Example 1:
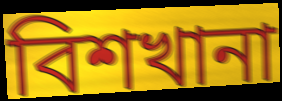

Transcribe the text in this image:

বিশখানা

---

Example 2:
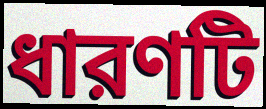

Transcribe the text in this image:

ধারণটি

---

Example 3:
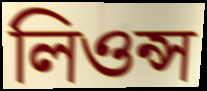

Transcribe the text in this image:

লিওন্স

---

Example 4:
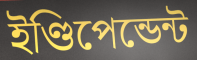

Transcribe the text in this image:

ইণ্ডিপেন্ডেন্ট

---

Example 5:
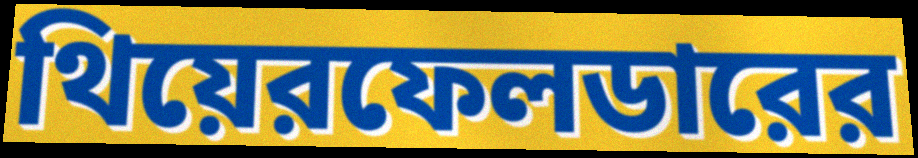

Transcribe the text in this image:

থিয়েরফেলডারের